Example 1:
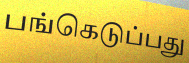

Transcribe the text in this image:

பங்கெடுப்பது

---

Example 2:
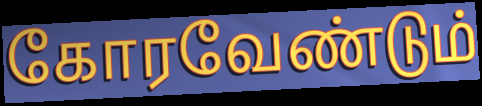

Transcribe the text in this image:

கோரவேண்டும்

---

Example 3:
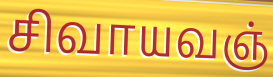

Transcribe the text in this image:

சிவாயவஞ்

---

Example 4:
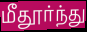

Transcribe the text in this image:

மீதூர்ந்து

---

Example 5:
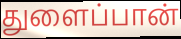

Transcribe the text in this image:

துளைப்பான்